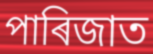
পাৰিজাত